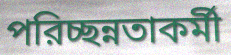
পরিচ্ছন্নতাকর্মী